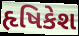
હૃષિકેશ